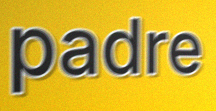
padre